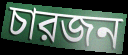
চারজন